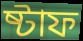
ষ্টাফ